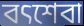
বৎশেবা